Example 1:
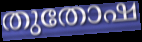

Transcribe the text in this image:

തുതോഷ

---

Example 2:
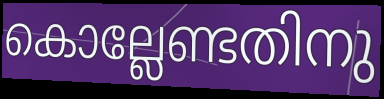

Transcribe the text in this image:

കൊല്ലേണ്ടതിനു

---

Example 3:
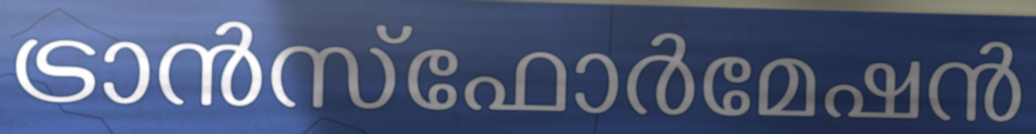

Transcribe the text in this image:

ട്രാൻസ്ഫോർമേഷൻ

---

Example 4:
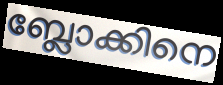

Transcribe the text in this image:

ബ്ലോക്കിനെ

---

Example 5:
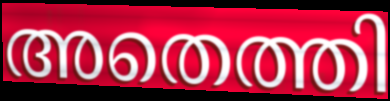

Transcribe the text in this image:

അതെത്തി